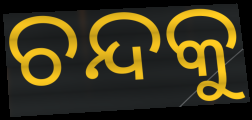
ଚନ୍ଦକୁ